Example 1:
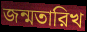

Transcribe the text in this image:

জন্মতারিখ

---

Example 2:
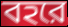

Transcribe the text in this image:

বহরে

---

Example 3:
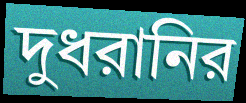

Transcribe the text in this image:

দুধরানির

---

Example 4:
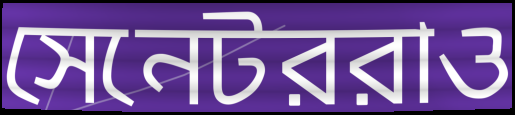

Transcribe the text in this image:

সেনেটররাও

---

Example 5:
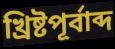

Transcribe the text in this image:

খ্রিষ্টপূর্বাব্দ